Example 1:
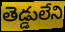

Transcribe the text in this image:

తెడ్డులేని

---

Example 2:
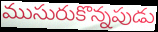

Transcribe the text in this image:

ముసురుకొన్నపుడు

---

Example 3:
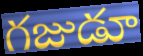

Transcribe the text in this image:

గజుడూ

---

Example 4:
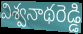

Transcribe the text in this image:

విశ్వనాథరెడ్డి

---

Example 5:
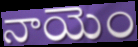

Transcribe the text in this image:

నాయెం